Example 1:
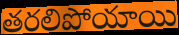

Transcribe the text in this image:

తరలిపోయాయి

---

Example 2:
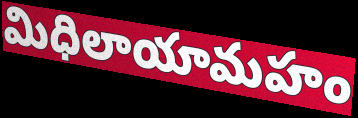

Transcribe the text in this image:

మిధిలాయామహం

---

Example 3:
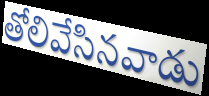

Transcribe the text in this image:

తోలివేసినవాడు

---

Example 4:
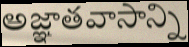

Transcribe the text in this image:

అజ్ఞాతవాసాన్ని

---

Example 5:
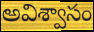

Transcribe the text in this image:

అవిశ్వాసం